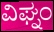
ವಿಘ್ನಂ